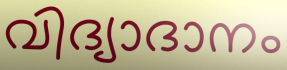
വിദ്യാദാനം